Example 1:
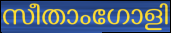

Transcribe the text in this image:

സീതാംഗോളി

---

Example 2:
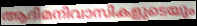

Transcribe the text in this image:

ആദിമനിവാസികളുടെയും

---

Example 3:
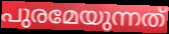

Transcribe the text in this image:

പുരമേയുന്നത്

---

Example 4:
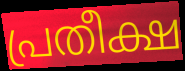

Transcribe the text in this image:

പ്രതീക്ഷ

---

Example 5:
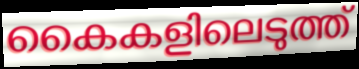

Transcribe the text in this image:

കൈകളിലെടുത്ത്